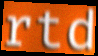
rtd